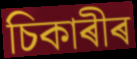
চিকাৰীৰ